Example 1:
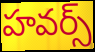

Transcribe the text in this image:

హవర్స్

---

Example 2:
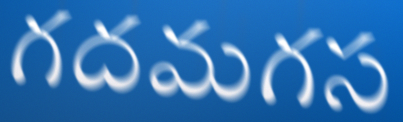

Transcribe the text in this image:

గదమగస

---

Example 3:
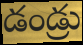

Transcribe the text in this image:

డండ్రు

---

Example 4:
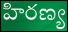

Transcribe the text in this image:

హిరణ్య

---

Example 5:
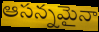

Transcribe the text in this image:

ఆసన్నమైనా